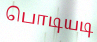
பொடியடி